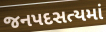
જનપદસત્યમાં